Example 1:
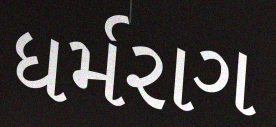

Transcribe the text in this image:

ધર્મરાગ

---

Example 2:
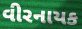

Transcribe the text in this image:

વીરનાયક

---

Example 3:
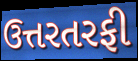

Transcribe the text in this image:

ઉત્તરતરફી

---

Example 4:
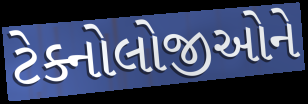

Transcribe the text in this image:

ટેક્નોલોજીઓને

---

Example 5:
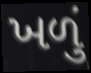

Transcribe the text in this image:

ખળું